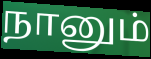
நானும்